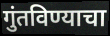
गुंतविण्याचा